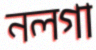
নলগা